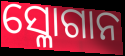
ସ୍ଳୋଗାନ